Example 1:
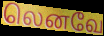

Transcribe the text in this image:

லெனவே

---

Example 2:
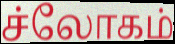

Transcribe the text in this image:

ச்லோகம்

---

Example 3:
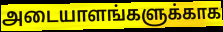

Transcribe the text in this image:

அடையாளங்களுக்காக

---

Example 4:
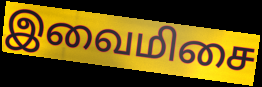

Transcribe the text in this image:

இவைமிசை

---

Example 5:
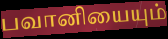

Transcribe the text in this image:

பவானியையும்